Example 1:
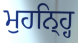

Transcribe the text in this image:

ਮੁਹਨ੍ਹ੍ਹਿ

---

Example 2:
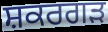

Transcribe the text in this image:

ਸ਼ਕਰਗੜ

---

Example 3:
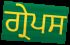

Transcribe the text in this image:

ਗ੍ਰੇਪਸ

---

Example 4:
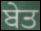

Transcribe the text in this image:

ਬੇਤ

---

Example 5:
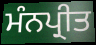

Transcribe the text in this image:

ਮੰਨਪ੍ਰੀਤ